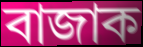
বাজাক